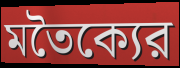
মতৈক্যের